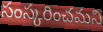
సంస్కరించమని